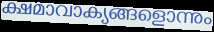
ക്ഷമാവാക്യങ്ങളൊന്നും